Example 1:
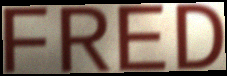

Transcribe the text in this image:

FRED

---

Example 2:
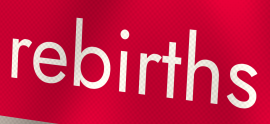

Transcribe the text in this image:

rebirths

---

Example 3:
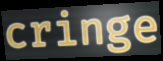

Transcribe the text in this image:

cringe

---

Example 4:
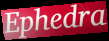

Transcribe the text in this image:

Ephedra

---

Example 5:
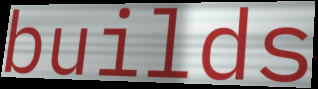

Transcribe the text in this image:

builds